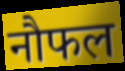
नौफल